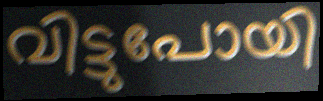
വിട്ടുപോയി